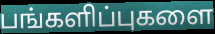
பங்களிப்புகளை